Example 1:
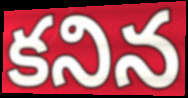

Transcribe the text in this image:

కనిన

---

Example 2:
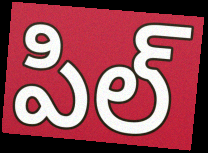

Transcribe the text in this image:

పిల్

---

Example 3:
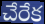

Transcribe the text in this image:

చేరేక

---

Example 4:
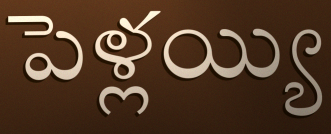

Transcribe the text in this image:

పెళ్లయ్యి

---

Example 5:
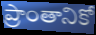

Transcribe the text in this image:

ప్రాంతానికో